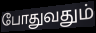
போதுவதும்